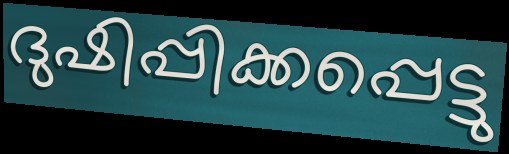
ദുഷിപ്പിക്കപ്പെട്ടു